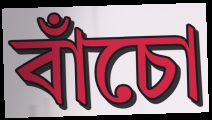
বাঁচো